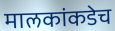
मालकांकडेच